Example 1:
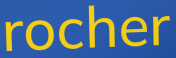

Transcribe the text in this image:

rocher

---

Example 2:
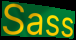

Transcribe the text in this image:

Sass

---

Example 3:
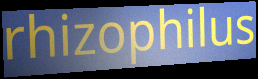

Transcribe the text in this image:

rhizophilus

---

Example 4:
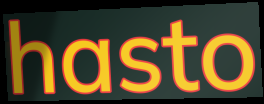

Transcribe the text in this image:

hasto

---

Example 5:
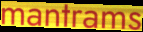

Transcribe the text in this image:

mantrams